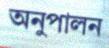
অনুপালন